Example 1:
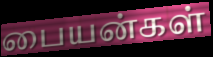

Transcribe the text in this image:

பையன்கள்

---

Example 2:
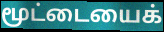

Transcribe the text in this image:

மூட்டையைக்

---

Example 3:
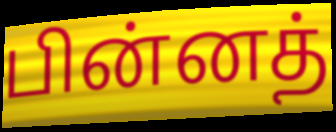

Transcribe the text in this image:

பின்னத்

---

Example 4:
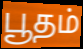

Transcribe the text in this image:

பூதம்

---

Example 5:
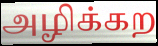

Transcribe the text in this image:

அழிக்கற